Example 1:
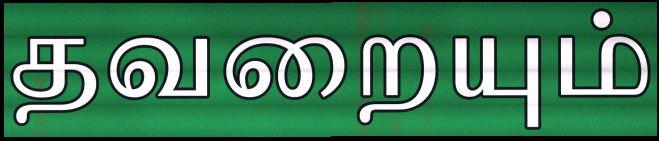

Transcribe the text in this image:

தவறையும்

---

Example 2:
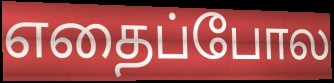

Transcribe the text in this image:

எதைப்போல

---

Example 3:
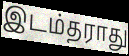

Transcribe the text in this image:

இடம்தராது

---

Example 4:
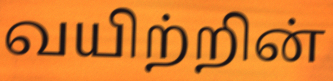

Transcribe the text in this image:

வயிற்றின்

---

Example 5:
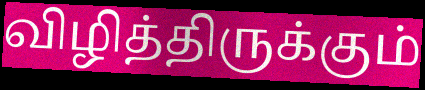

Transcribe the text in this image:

விழித்திருக்கும்